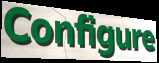
Configure